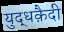
युद्धक़ैदी